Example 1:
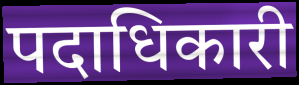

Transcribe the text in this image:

पदाधिकारी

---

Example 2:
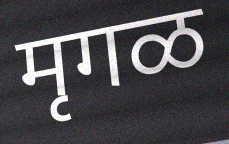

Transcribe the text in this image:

मृगळ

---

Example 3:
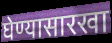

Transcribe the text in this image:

घेण्यासारखा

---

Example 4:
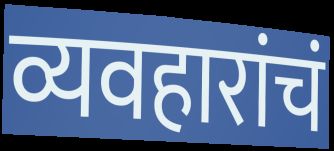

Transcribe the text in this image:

व्यवहारांचं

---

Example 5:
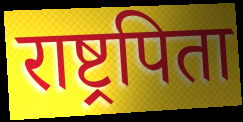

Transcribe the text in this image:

राष्ट्रपिता